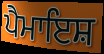
ਪੈਮਾਇਸ਼